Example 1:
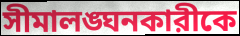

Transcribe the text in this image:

সীমালঙ্ঘনকারীকে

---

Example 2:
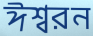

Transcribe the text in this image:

ঈশ্বরন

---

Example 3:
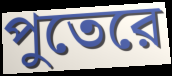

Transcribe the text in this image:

পুতেরে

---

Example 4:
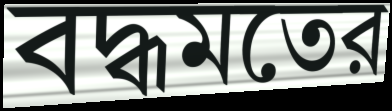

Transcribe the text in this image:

বদ্ধমতের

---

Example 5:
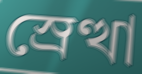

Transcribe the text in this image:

স্রেত্থা